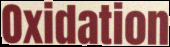
Oxidation